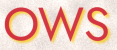
OWS